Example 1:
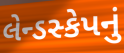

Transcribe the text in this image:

લેન્ડસ્કેપનું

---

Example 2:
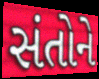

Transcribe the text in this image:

સંતોને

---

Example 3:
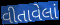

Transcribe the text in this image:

વીતાવેલાં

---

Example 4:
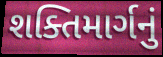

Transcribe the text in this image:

શક્તિમાર્ગનું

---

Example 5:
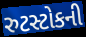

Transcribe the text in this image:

રુટસ્ટોકની